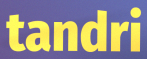
tandri